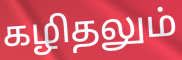
கழிதலும்